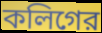
কলিগের